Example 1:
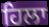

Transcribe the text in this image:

ਹਿਲਾ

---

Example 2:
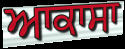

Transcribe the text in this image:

ਆਕਾਸਾ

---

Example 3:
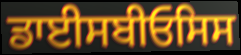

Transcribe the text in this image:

ਡਾਈਸਬੀਓਸਿਸ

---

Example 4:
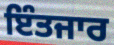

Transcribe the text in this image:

ਇੰਤਜਾਰ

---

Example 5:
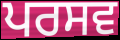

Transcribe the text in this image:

ਪਰਸਵ